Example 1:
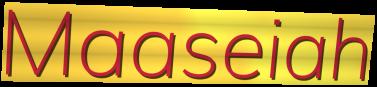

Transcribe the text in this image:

Maaseiah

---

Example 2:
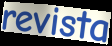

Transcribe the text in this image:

revista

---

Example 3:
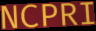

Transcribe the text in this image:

NCPRI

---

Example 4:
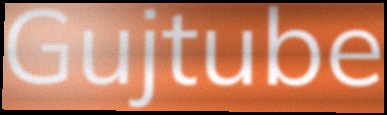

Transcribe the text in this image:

Gujtube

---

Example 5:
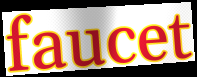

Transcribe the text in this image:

faucet